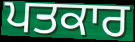
ਪਤਕਾਰ